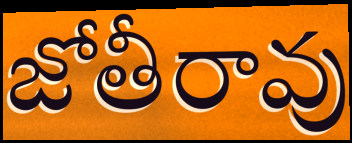
జోతీరావు